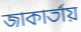
জাকার্তায়